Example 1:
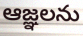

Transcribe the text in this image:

ఆజ్ఞలను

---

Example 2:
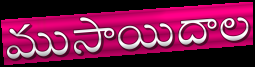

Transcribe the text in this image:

ముసాయిదాల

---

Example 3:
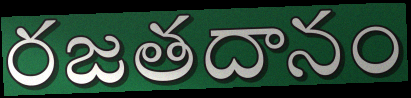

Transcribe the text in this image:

రజతదానం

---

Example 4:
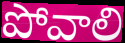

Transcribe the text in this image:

పోవాలి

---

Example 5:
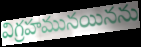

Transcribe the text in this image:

విగ్రహమునయినను